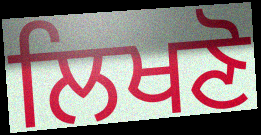
ਲਿਖਣੋ